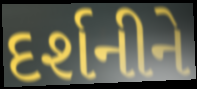
દર્શનીને